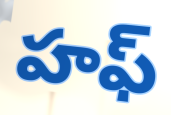
హఫ్